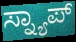
ಸ್ನ್ಯಾಪ್